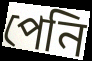
পেনি